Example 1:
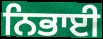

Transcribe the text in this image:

ਨਿਭਾਈ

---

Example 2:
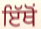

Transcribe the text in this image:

ਇੱਥੋਂ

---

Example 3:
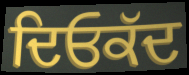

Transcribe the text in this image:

ਦਿਓਕੱਦ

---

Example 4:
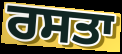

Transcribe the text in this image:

ਰਸਤਾ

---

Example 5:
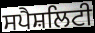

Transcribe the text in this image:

ਸਪੈਸ਼ਲਿਟੀ